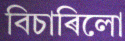
বিচাৰিলো